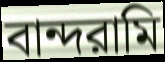
বান্দরামি